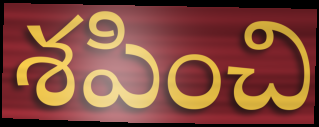
శపించి